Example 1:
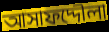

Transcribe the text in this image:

আসাফদ্দৌলা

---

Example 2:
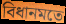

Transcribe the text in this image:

বিধানমতে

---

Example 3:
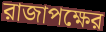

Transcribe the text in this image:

রাজাপক্ষের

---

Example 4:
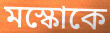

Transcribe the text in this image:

মস্কোকে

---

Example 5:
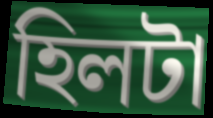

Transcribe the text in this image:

হিলটা